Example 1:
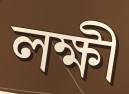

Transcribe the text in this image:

লক্ষী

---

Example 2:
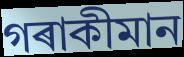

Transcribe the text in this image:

গৰাকীমান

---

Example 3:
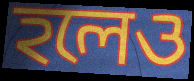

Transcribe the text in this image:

হলেও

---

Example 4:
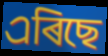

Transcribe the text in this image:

এৰিছে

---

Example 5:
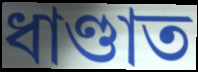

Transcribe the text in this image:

ধাণ্ডাত